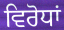
ਵਿਰੋਧਾਂ